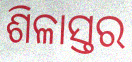
ଶିଳାସ୍ତର